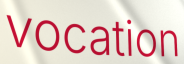
vocation